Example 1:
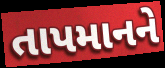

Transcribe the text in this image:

તાપમાનને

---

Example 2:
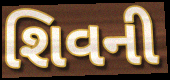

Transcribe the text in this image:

શિવની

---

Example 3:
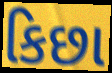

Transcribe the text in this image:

કિછા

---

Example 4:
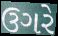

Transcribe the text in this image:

ઉગરે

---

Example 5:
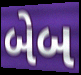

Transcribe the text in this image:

બેબ